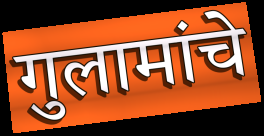
गुलामांचे